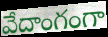
వేదాంగంగా